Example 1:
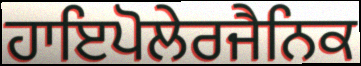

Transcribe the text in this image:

ਹਾਇਪੋਲੇਰਜੈਨਿਕ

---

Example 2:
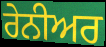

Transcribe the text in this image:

ਰੇਨੀਅਰ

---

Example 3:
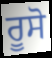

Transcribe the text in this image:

ਰੂਸੋ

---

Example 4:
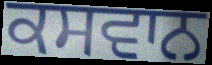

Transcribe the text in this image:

ਕਸਵਾਨ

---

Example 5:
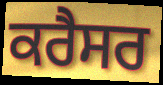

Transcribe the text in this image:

ਕਰੈਸਰ